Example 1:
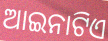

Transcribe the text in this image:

ଆଇନାଟିଏ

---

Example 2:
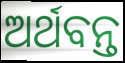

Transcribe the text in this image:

ଅର୍ଥବନ୍ତ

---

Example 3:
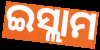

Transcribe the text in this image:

ଇସ୍ଲାମ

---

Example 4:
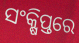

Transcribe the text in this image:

ସଂକ୍ଷିପ୍ତରେ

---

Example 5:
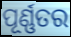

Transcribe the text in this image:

ପୂର୍ଣ୍ଣତର